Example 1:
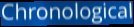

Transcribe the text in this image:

Chronological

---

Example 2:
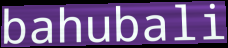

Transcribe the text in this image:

bahubali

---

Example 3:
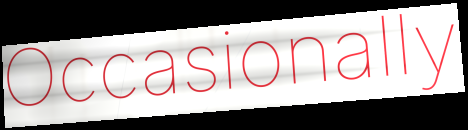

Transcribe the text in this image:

Occasionally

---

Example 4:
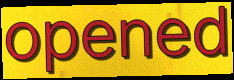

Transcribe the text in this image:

opened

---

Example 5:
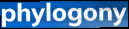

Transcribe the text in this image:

phylogony